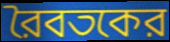
রৈবতকের